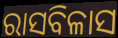
ରାସବିଳାସ